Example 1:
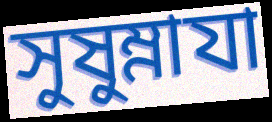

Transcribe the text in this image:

সুষুম্নাযা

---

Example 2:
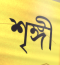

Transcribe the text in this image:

শৃঙ্গী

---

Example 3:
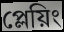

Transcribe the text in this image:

প্লেয়িং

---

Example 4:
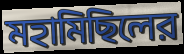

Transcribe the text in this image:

মহামিছিলের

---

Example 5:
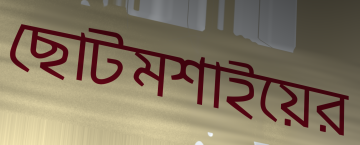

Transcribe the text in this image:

ছোটমশাইয়ের